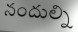
నందుల్ని